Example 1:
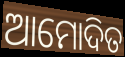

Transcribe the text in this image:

ଆମୋଦିତ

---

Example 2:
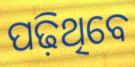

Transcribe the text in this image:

ପଢ଼ିଥିବେ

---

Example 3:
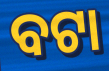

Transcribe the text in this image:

ବଟା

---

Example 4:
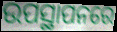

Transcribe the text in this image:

ଉପସ୍ଥାପନରେ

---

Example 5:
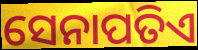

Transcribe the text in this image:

ସେନାପତିଏ